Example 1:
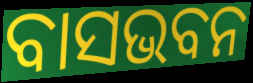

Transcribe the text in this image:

ବାସଭବନ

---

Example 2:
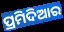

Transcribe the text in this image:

ପ୍ରମିଦିଆର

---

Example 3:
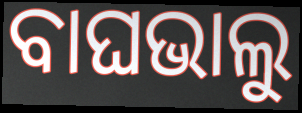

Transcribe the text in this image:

ବାଘଭାଲୁ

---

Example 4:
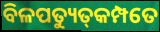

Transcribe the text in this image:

ବିଳପତ୍ୟୁତ୍‌କମ୍ପତେ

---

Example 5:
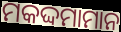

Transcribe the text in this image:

ମକଦ୍ଦମାମାନ